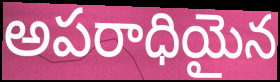
అపరాధియైన